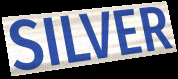
SILVER